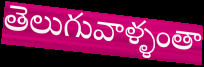
తెలుగువాళ్ళంతా